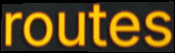
routes